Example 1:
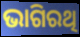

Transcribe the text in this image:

ଭାଗିରଥି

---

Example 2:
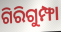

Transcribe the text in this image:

ଗିରିଗୁମ୍ଫା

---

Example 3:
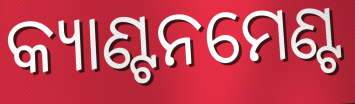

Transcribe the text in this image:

କ୍ୟାଣ୍ଟନମେଣ୍ଟ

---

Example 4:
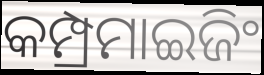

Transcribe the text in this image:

କମ୍ପ୍ରମାଇଜିଂ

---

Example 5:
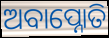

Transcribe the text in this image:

ଅବାପ୍ନୋତି